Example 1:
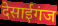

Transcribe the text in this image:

देसाईगंज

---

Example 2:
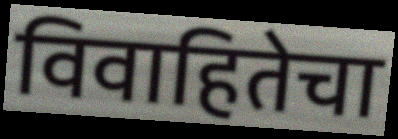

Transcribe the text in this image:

विवाहितेचा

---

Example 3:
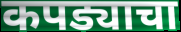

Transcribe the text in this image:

कपड्याचा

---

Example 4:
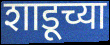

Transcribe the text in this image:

शाडूच्या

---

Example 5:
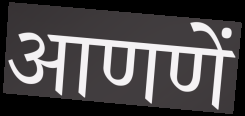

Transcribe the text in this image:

आणणें